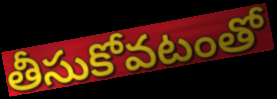
తీసుకోవటంతో